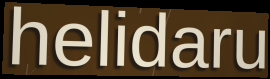
helidaru